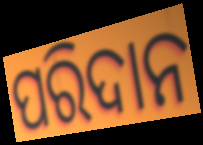
ପରିଦାନ